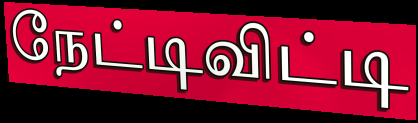
நேட்டிவிட்டி